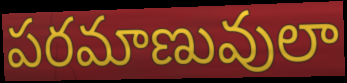
పరమాణువులా